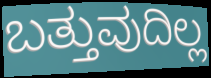
ಬತ್ತುವುದಿಲ್ಲ